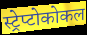
स्ट्रेप्टोकोकल